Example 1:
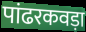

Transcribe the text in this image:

पांढरकवड़ा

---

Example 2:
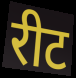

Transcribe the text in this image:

रीट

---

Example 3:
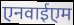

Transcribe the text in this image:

एनवाईएम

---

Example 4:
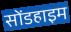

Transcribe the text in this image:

सोंडहाइम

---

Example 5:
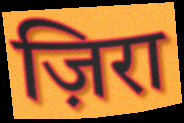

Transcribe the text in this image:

ज़िरा